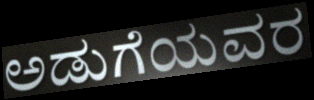
ಅಡುಗೆಯವರ